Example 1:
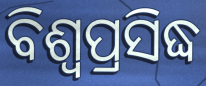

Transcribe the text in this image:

ବିଶ୍ଵପ୍ରସିଦ୍ଧ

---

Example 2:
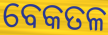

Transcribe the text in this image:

ବେକତଳ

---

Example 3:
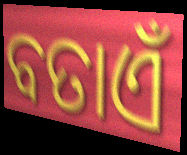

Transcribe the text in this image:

ବତାଏଁ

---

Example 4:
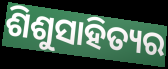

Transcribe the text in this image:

ଶିଶୁସାହିତ୍ୟର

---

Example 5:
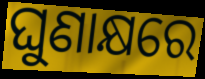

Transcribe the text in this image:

ଘୁଣାକ୍ଷରେ